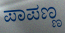
ಪಾಪಣ್ಣ